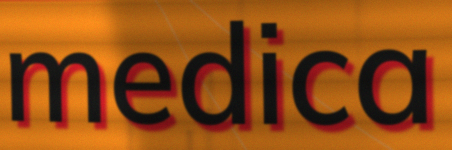
medica